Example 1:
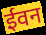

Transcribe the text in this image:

ईवन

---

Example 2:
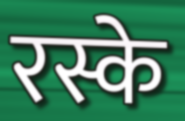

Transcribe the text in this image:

रस्के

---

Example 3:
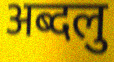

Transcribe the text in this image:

अब्दलु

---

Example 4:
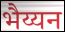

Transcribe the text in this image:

भैय्यन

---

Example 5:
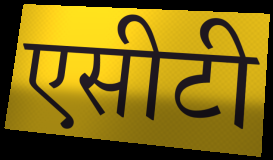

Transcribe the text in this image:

एसीटी